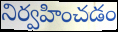
నిర్వహించడం